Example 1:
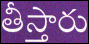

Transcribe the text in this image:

తీస్తారు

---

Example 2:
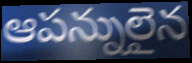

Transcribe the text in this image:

ఆపన్నులైన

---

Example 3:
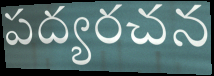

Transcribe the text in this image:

పద్యరచన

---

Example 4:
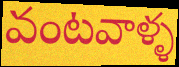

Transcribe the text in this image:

వంటవాళ్ళ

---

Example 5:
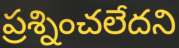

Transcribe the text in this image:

ప్రశ్నించలేదని